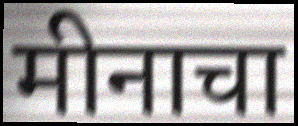
मीनाचा